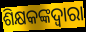
ଶିକ୍ଷକଙ୍କଦ୍ଵାରା